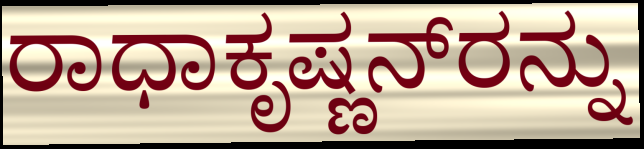
ರಾಧಾಕೃಷ್ಣನ್‌ರನ್ನು